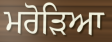
ਮਰੋੜਿਆ